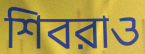
শিবরাও